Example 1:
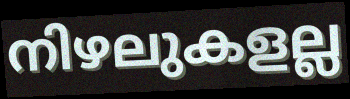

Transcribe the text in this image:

നിഴലുകളല്ല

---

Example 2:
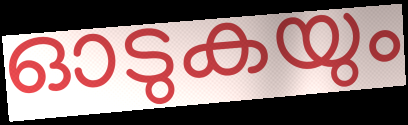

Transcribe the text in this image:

ഓടുകയും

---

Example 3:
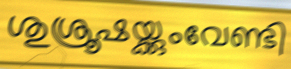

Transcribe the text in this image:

ശുശ്രൂഷയ്ക്കുംവേണ്ടി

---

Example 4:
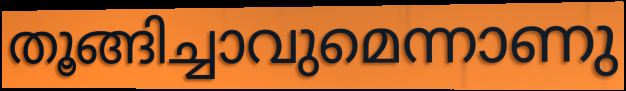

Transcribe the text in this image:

തൂങ്ങിച്ചാവുമെന്നാണു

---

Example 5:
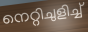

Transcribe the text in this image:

നെറ്റിചുളിച്ച്